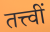
तत्त्वीं